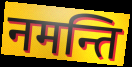
नमन्ति